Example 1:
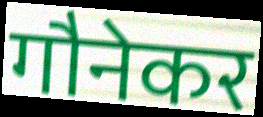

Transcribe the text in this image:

गौनेकर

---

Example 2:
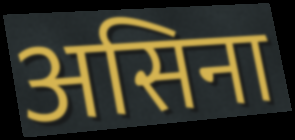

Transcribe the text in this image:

असिना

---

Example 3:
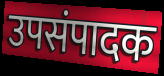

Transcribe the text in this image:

उपसंपादक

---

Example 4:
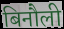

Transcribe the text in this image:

बिनौली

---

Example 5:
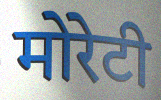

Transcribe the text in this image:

मोरेटी